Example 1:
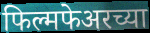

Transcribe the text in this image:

फिल्मफेअरच्या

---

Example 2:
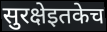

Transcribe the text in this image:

सुरक्षेइतकेच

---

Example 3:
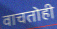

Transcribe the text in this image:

वाचतोही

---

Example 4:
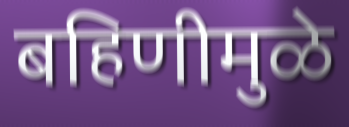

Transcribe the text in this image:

बहिणीमुळे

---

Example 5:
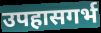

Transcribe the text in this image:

उपहासगर्भ